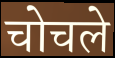
चोचले